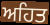
ਅਹਿਤ